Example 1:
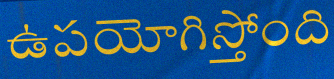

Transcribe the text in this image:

ఉపయోగిస్తోంది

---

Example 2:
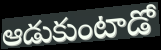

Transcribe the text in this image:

ఆడుకుంటాడో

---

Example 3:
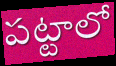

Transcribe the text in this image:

పట్టాలో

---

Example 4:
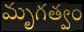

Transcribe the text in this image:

మృగత్వం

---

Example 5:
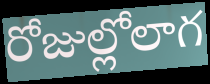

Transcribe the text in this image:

రోజుల్లోలాగ